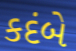
કદંબે